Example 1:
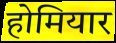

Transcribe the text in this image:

होमियार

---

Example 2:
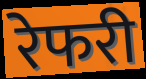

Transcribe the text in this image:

रेफरी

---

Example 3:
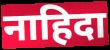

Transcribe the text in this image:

नाहिदा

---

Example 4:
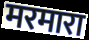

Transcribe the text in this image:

मरमारा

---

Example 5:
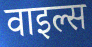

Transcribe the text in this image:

वाइल्स